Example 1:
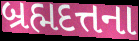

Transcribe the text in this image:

બ્રહ્મદત્તના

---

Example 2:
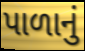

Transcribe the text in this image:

પાળાનું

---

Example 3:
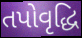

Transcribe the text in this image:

તપોવૃદ્ધિ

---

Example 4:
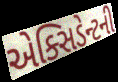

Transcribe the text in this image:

એક્સિડેન્ટની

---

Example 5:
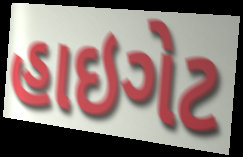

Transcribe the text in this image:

હાઇગેટ